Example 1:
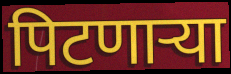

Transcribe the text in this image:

पिटणाऱ्या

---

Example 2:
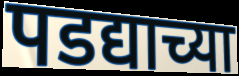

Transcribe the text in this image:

पडद्याच्या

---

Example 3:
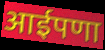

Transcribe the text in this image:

आईपणा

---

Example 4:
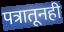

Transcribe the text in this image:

पत्रातूनही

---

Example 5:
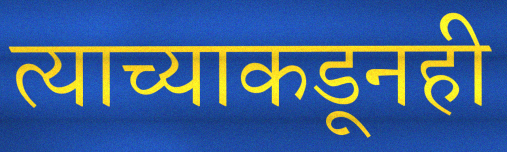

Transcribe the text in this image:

त्याच्याकडूनही